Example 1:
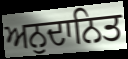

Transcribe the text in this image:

ਅਨੁਦਾਨਿਤ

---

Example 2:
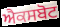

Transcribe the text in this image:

ਐਕਸਬੋਟ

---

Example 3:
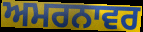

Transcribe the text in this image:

ਅਮਰਨਾਵਰ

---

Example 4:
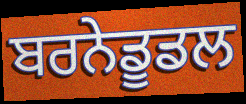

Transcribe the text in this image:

ਬਰਨੇਡੂਡਲ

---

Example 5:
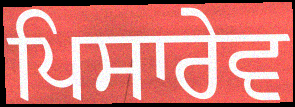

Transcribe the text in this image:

ਪਿਸਾਰੇਵ